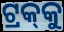
ଟ୍ରକ୍‍କୁ